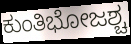
ಕುಂತಿಭೋಜಶ್ಚ